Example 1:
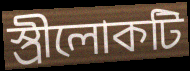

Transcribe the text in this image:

স্ত্রীলোকটি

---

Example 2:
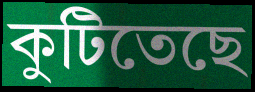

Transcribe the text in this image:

কুটিতেছে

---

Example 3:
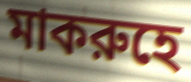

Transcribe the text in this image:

মাকরুহে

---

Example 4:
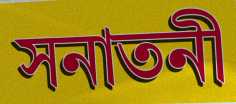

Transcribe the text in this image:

সনাতনী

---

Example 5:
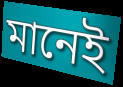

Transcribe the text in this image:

মানেই